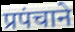
प्रपंचाने